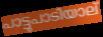
പാട്ടുപാടിയാല്